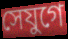
সেযুগে